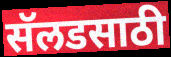
सॅलडसाठी